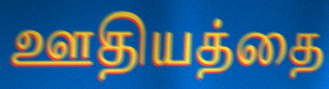
ஊதியத்தை